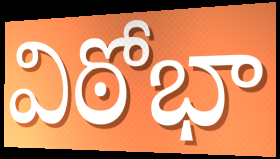
విఠోభా